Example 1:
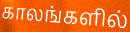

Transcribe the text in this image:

காலங்களில்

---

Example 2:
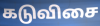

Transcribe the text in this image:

கடுவிசை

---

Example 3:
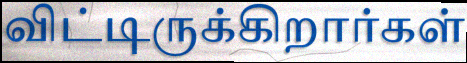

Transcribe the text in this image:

விட்டிருக்கிறார்கள்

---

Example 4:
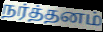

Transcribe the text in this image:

நர்த்தனம்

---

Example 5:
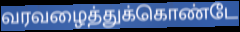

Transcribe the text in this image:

வரவழைத்துக்கொண்டே